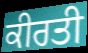
ਕੀਰਤੀ